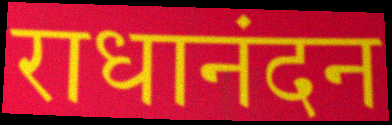
राधानंदन